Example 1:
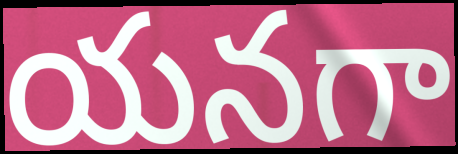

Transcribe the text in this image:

యనగా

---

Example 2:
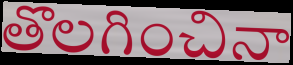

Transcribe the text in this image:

తొలగించినా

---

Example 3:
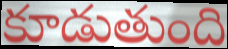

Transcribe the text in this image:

కూడుతుంది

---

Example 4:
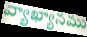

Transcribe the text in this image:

వ్యాఖ్యానము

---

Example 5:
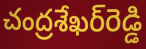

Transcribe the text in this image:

చంద్రశేఖర్‌రెడ్డి